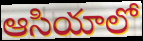
ఆసియాలో